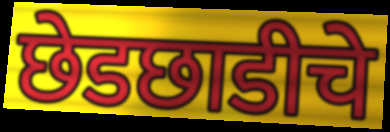
छेडछाडीचे